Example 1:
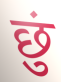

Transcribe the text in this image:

छुं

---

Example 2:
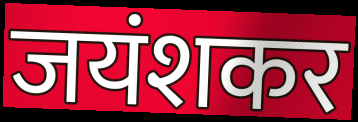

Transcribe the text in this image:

जयंशकर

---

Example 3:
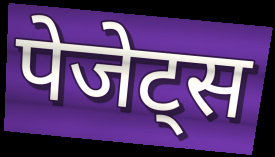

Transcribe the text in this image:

पेजेट्स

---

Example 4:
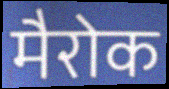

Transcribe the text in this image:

मैरोक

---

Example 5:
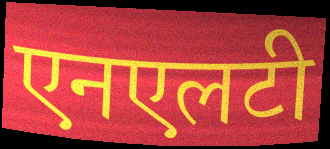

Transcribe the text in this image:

एनएलटी